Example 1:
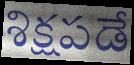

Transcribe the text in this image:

శిక్షపడే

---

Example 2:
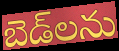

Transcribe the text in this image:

బెడ్‌లను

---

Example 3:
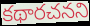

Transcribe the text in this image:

కథారచనని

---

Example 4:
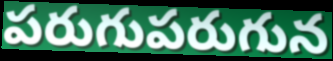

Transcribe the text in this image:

పరుగుపరుగున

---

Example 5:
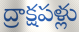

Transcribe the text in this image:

ద్రాక్షపళ్లు